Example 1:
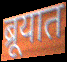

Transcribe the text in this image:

ब्रूयात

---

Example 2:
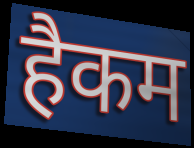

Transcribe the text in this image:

हैकम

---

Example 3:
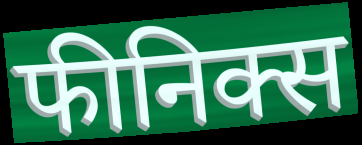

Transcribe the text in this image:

फीनिक्स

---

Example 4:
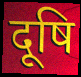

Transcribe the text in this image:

दूषि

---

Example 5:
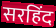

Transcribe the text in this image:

सरहिंद